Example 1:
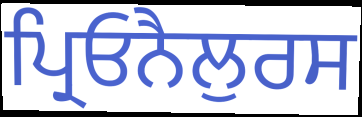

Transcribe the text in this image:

ਪ੍ਰਿਓਨੈਲੁਰਸ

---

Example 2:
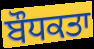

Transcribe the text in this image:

ਬੌਧਕਤਾ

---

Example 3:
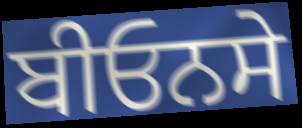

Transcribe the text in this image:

ਬੀਓਨਸੇ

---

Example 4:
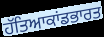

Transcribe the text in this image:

ਹੱਤਿਆਕਾਂਡਭਾਰਤ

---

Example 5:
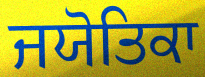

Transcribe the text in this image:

ਜਯੋਤਿਕਾ